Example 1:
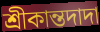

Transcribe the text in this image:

শ্রীকান্তদাদা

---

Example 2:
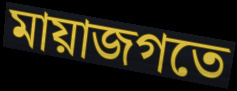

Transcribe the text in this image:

মায়াজগতে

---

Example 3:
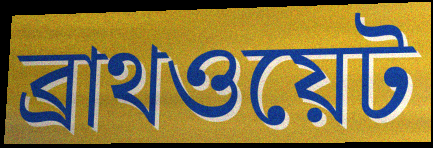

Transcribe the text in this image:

ব্রাথওয়েট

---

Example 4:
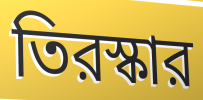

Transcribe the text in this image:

তিরস্কার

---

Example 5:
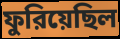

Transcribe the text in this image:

ফুরিয়েছিল